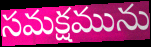
సమక్షమును